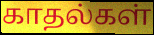
காதல்கள்